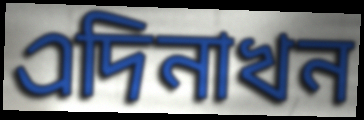
এদিনাখন